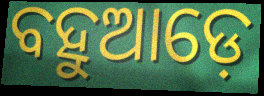
ବହୁଆଡ଼େ